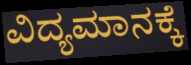
ವಿದ್ಯಮಾನಕ್ಕೆ